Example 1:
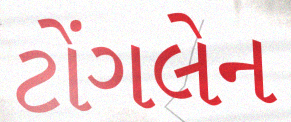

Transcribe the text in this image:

ટોંગલેન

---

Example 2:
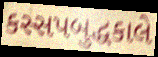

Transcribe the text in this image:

કસ્સપબુદ્ધકાલે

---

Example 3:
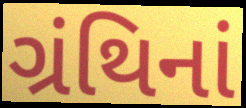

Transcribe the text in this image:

ગ્રંથિનાં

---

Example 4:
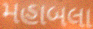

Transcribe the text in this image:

મહાબલા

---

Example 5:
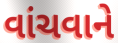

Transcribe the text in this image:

વાંચવાને